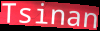
Tsinan